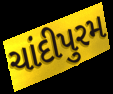
ચાંદીપુરમ